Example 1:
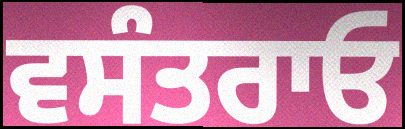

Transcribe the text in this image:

ਵਸੰਤਰਾਓ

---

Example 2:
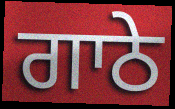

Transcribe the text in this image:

ਗਾਠੇ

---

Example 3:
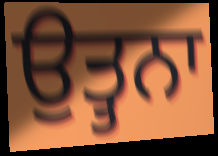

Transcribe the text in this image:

ਉਤ੍ਤਨਾ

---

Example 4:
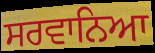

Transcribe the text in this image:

ਸਰਵਾਨਿਆ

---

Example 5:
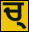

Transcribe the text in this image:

ਚ੍